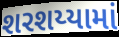
શરશય્યામાં